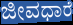
ಜೀವಧಾರೆ